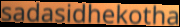
sadasidhekotha